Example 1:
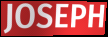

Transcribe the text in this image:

JOSEPH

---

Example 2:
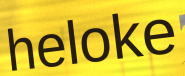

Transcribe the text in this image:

heloke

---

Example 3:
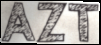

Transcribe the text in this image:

AZT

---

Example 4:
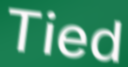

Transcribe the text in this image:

Tied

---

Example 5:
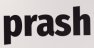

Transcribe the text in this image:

prash